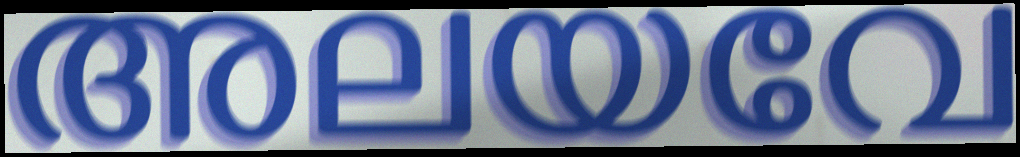
അലയവേ